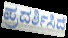
ಪ್ರದರ್ಶಿಸಿದೆ